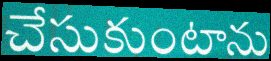
చేసుకుంటాను